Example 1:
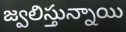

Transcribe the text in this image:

జ్వలిస్తున్నాయి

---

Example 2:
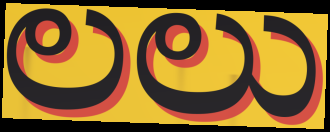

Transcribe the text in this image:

లలు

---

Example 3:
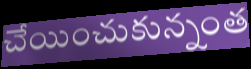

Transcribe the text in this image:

చేయించుకున్నంత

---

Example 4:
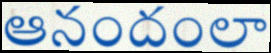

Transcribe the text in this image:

ఆనందంలా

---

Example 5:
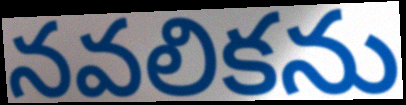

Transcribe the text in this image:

నవలికను